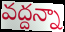
వద్దన్నా